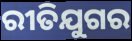
ରୀତିଯୁଗର